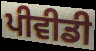
ਪੀਵੀਡੀ